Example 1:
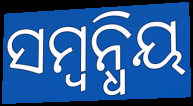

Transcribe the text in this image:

ସମ୍ଵନ୍ଧିୟ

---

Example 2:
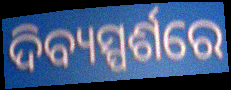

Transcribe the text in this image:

ଦିବ୍ୟସ୍ପର୍ଶରେ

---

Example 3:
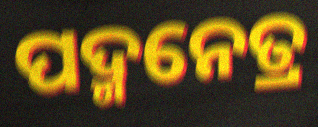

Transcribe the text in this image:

ପଦ୍ମନେତ୍ର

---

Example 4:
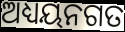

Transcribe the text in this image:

ଅଧ୍ୟୟନଗତ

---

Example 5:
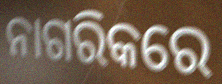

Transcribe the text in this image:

ନାଗରିକରେ